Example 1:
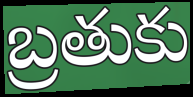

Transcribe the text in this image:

బ్రతుకు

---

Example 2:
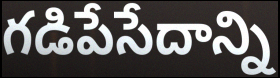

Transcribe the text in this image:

గడిపేసేదాన్ని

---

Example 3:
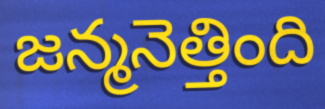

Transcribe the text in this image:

జన్మనెత్తింది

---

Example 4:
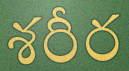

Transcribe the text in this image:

శరీర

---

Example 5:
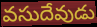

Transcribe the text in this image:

వసుదేవుడు